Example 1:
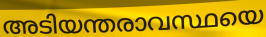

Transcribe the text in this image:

അടിയന്തരാവസ്ഥയെ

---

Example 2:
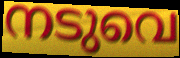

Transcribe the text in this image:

നടുവെ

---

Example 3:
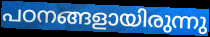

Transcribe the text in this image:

പഠനങ്ങളായിരുന്നു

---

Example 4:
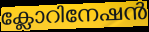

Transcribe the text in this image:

ക്ലോറിനേഷൻ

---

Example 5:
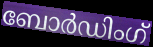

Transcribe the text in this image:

ബോർഡിംഗ്